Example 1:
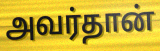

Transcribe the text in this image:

அவர்தான்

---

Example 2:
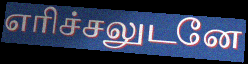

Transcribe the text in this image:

எரிச்சலுடனே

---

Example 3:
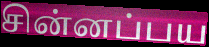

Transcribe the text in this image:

சின்னப்பய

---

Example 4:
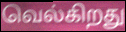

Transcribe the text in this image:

வெல்கிறது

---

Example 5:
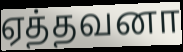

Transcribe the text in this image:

ஏத்தவனா